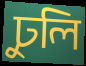
ঢুলি